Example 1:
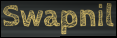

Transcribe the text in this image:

Swapnil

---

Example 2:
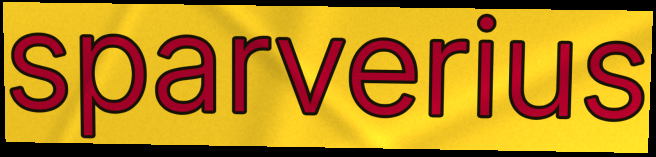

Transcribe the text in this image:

sparverius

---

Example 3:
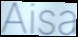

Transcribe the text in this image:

Aisa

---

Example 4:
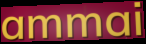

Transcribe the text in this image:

ammai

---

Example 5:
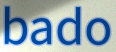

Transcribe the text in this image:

bado